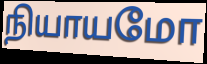
நியாயமோ